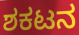
ಶಕಟನ